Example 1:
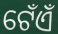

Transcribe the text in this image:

ଟେଁଏଁ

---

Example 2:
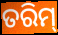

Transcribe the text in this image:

ତରିମ୍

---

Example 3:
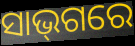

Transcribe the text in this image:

ସାଭ୍‌ଗରେ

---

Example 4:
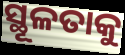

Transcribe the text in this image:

ସ୍ଥୂଳତାକୁ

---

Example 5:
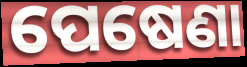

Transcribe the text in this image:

ପେଷେଣା